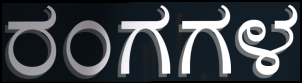
ರಂಗಗಳ